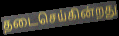
தடைசெய்கின்றது